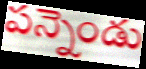
పన్నెండు